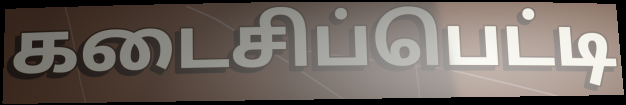
கடைசிப்பெட்டி